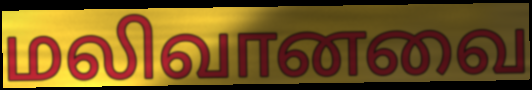
மலிவானவை